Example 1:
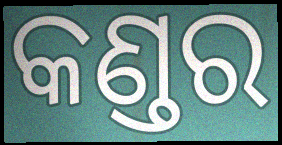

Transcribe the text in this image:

କଣ୍ଡର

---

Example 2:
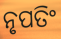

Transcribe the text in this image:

ନୃପତିଂ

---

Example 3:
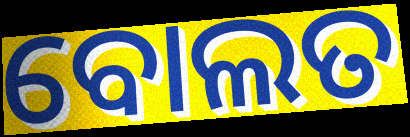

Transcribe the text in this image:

ବୋଲତ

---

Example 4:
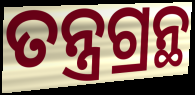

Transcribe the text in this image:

ତନ୍ତ୍ରଗ୍ରନ୍ଥ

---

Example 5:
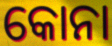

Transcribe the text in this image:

କୋନା